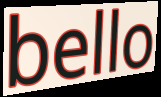
bello